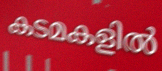
കടമകളിൽ